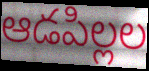
ఆడపిల్లల